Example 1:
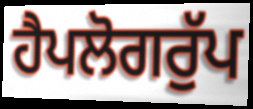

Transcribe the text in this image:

ਹੈਪਲੋਗਰੁੱਪ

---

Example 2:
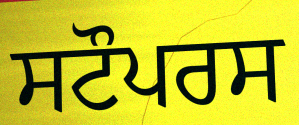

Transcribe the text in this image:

ਸਟੌਪਰਸ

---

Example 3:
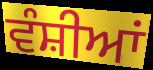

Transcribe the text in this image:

ਵੰਸ਼ੀਆਂ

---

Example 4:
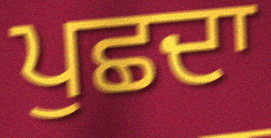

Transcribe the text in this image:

ਪੁਛਦਾ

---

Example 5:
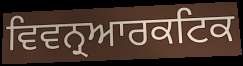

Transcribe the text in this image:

ਵਿਵਨ੍ਰਆਰਕਟਿਕ